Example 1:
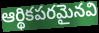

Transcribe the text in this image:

ఆర్థికపరమైనవి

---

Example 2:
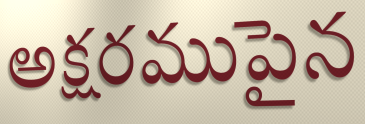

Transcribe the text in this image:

అక్షరముపైన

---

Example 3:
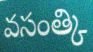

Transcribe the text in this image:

వసంత్కి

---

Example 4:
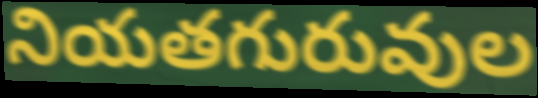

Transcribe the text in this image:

నియతగురువుల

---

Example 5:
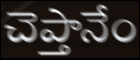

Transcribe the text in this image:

చెప్తానేం